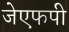
जेएफपी